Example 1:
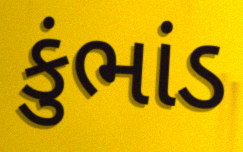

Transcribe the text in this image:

કુંભાંડ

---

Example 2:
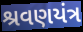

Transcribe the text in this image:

શ્રવણયંત્ર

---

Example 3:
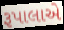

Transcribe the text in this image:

રૂપાલાએ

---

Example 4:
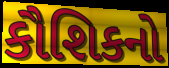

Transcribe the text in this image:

કૌશિકનો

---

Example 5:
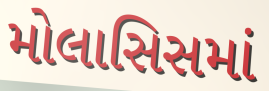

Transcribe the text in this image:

મોલાસિસમાં